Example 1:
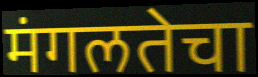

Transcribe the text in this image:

मंगलतेचा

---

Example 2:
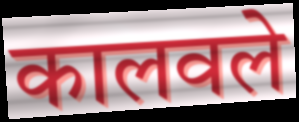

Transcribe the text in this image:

कालवले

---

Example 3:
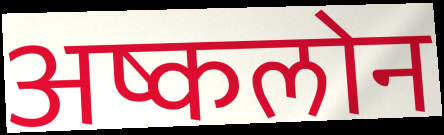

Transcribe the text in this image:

अष्कलोन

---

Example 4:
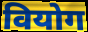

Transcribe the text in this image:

वियोग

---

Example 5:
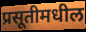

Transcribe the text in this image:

प्रसूतीमधील